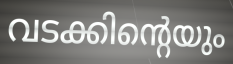
വടക്കിന്റെയും